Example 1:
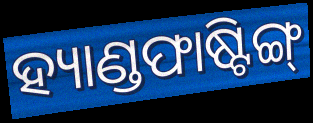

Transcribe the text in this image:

ହ୍ୟାଣ୍ଡଫାଷ୍ଟିଙ୍ଗ୍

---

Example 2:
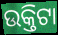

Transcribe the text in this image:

ଉକ୍ତିଟା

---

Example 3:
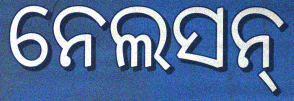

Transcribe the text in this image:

ନେଲସନ୍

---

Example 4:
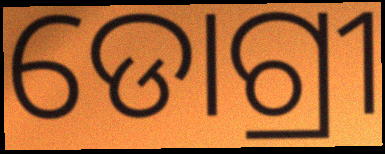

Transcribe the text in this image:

ଡୋଗ୍ରୀ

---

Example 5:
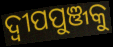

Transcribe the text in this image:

ଦ୍ଵୀପପୁଞ୍ଜକୁ